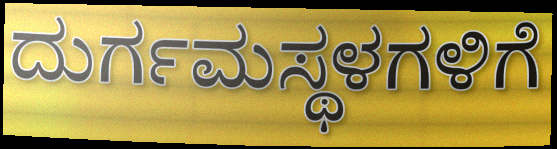
ದುರ್ಗಮಸ್ಥಳಗಳಿಗೆ